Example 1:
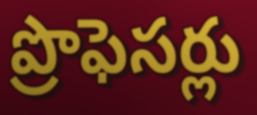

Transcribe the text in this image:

ప్రొఫెసర్లు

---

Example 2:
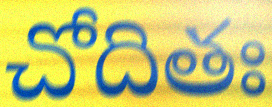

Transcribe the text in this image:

చోదితః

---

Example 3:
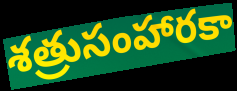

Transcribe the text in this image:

శత్రుసంహారకా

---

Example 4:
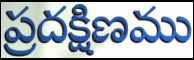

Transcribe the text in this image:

ప్రదక్షిణము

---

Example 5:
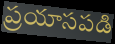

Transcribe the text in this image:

ప్రయాసపడి